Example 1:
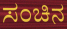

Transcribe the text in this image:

ಸಂಚಿನ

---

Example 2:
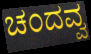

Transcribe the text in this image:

ಚಂದವ್ವ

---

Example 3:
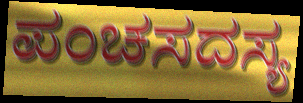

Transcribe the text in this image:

ಪಂಚಸದಸ್ಯ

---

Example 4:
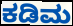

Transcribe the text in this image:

ಕಡಿಮ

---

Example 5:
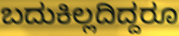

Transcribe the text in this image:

ಬದುಕಿಲ್ಲದಿದ್ದರೂ